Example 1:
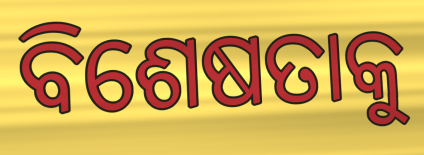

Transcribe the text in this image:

ବିଶେଷତାକୁ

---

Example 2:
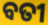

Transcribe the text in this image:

ବତୀ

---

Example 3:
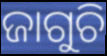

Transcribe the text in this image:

ଜାଗୁଚି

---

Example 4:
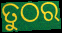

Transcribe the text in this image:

ତୁଠର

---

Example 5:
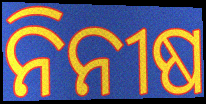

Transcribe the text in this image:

ନିନୀଷ